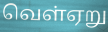
வெள்ஏறு